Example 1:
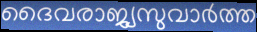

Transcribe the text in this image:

ദൈവരാജ്യസുവാർത്ത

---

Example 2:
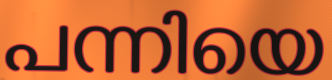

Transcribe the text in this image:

പന്നിയെ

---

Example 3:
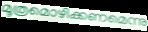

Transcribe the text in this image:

മൂത്രമൊഴിക്കണമെന്നു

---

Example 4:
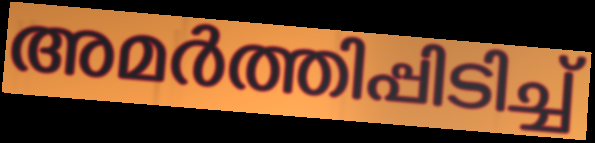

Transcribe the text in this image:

അമർത്തിപ്പിടിച്ച്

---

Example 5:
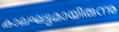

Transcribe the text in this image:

കാലഘട്ടമായിരുന്നു